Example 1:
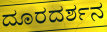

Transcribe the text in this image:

ದೂರದರ್ಶನ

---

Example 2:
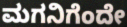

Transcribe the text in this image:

ಮಗನಿಗೆಂದೇ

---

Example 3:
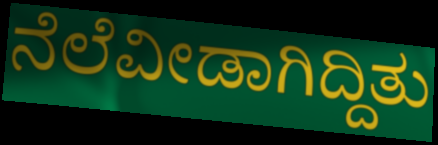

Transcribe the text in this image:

ನೆಲೆವೀಡಾಗಿದ್ದಿತು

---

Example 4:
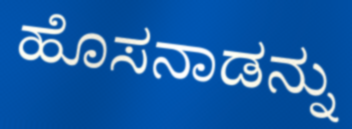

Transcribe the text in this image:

ಹೊಸನಾಡನ್ನು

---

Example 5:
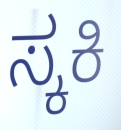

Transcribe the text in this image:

ಸ್ಕಕಿ